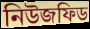
নিউজফিড